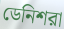
ডেনিশরা